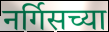
नर्गिसच्या